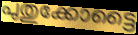
പുതുക്കോട്ടൈ